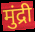
मुंद्री